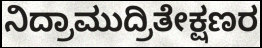
ನಿದ್ರಾಮುದ್ರಿತೇಕ್ಷಣರ